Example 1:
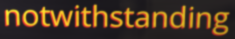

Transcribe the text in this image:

notwithstanding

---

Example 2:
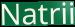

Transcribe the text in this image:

Natrii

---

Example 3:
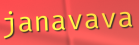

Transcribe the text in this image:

janavava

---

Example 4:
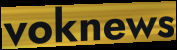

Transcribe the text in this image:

voknews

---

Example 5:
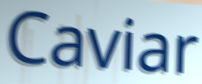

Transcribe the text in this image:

Caviar